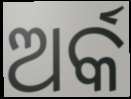
ଅର୍କ